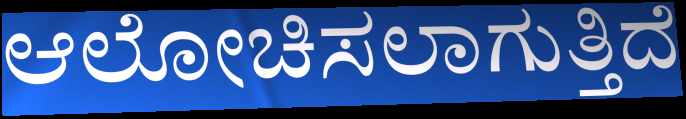
ಆಲೋಚಿಸಲಾಗುತ್ತಿದೆ